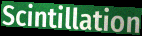
Scintillation